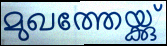
മുഖത്തേയ്ക്കു്